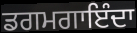
ਡਗਮਗਾਇੰਦਾ